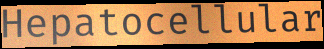
Hepatocellular